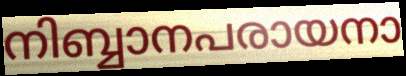
നിബ്ബാനപരായനാ